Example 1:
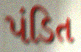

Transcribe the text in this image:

પંડિત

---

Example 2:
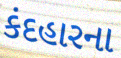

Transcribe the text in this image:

કંદહારના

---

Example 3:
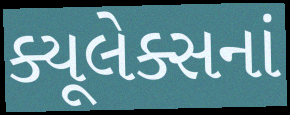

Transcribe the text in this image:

ક્યૂલેક્સનાં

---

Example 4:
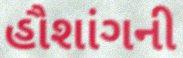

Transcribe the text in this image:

હૌશાંગની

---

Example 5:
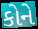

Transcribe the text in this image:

કોને